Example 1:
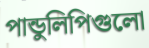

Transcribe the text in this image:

পান্ডুলিপিগুলো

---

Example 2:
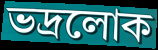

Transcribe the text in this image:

ভদ্রলোক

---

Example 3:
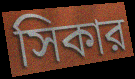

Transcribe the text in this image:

সিকার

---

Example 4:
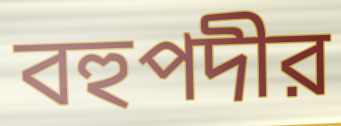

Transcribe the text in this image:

বহুপদীর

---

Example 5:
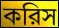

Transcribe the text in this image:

করিস